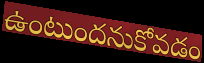
ఉంటుందనుకోవడం